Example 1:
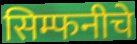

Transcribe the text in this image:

सिम्फनीचे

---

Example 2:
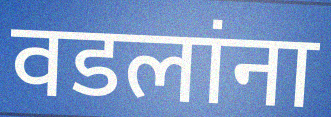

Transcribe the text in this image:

वडलांना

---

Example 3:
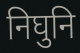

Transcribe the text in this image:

निघुनि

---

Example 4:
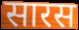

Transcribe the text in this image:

सारस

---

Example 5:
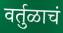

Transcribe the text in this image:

वर्तुळाचं